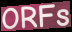
ORFs